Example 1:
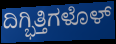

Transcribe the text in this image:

ದಿಗ್ಭಿತ್ತಿಗಳೊಳ್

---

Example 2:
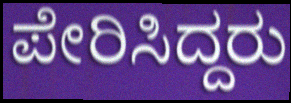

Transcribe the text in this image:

ಪೇರಿಸಿದ್ದರು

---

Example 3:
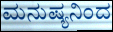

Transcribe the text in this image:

ಮನುಷ್ಯನಿಂದ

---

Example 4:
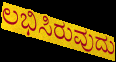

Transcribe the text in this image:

ಲಭಿಸಿರುವುದು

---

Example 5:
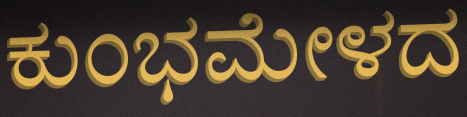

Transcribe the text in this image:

ಕುಂಭಮೇಳದ